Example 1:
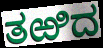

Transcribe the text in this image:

ತಱಿದ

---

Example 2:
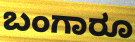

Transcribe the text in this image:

ಬಂಗಾರೂ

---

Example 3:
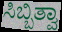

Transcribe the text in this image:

ಸಿಬ್ಬಿತ್ವಾ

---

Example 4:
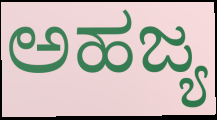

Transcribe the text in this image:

ಅಹಜ್ಯ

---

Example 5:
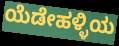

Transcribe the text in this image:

ಯೆಡೇಹಳ್ಳಿಯ